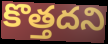
కొత్తదని